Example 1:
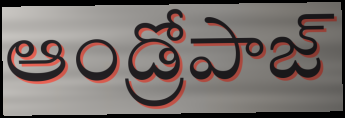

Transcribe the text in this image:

ఆండ్రోపాజ్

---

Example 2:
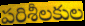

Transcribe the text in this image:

పరిశీలకుల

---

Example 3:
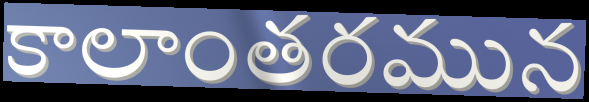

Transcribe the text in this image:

కాలాంతరమున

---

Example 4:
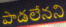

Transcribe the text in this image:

పాడలేనని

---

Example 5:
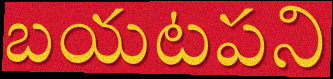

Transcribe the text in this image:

బయటపని